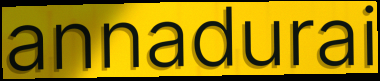
annadurai